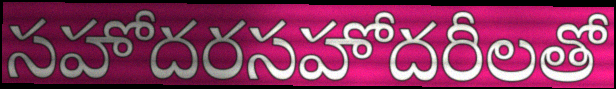
సహోదరసహోదరీలతో